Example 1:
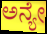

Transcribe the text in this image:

ಅನ್ಯೇ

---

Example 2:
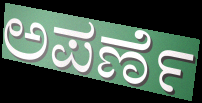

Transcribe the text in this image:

ಅಪರ್ಣೆ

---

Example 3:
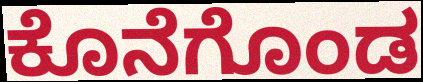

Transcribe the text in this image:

ಕೊನೆಗೊಂಡ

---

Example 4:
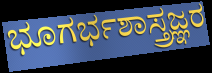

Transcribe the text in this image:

ಭೂಗರ್ಭಶಾಸ್ತ್ರಜ್ಞರ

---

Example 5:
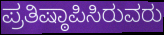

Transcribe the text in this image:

ಪ್ರತಿಷ್ಠಾಪಿಸಿರುವರು